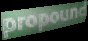
propound